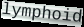
lymphoid